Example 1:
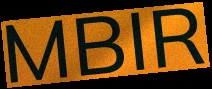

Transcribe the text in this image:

MBIR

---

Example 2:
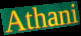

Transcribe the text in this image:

Athani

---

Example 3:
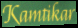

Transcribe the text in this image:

Kamtikar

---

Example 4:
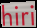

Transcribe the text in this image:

hiri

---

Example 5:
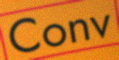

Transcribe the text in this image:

Conv